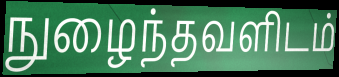
நுழைந்தவளிடம்